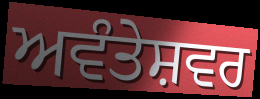
ਅਵੰਤੇਸ਼ਵਰ